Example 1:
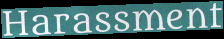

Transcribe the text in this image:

Harassment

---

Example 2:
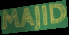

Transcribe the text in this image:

MAJID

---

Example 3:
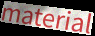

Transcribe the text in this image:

material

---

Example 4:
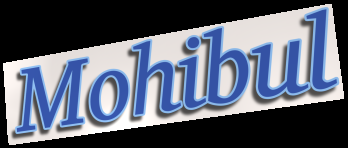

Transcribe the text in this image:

Mohibul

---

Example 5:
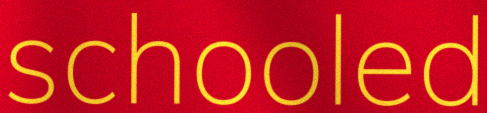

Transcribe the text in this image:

schooled